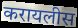
करायलीस